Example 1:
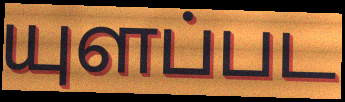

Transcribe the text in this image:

யுளப்பட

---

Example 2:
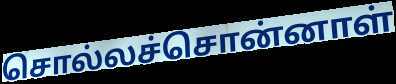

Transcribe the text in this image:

சொல்லச்சொன்னாள்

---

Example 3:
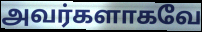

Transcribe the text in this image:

அவர்களாகவே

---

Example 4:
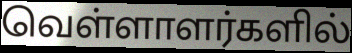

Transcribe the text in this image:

வெள்ளாளர்களில்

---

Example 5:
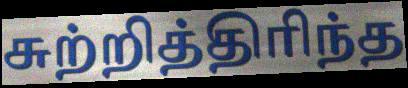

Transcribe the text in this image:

சுற்றித்திரிந்த